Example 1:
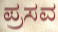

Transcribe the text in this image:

ಪ್ರಸವ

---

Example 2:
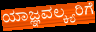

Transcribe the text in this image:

ಯಾಜ್ಞವಲ್ಕ್ಯರಿಗೆ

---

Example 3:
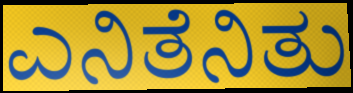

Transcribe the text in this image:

ಎನಿತೆನಿತು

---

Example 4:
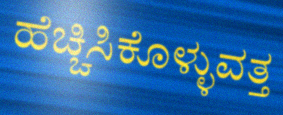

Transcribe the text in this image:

ಹೆಚ್ಚಿಸಿಕೊಳ್ಳುವತ್ತ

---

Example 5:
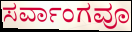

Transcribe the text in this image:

ಸರ್ವಾಂಗವೂ